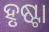
ହୃଷ୍ଟା